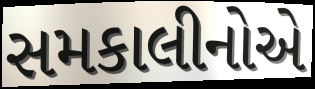
સમકાલીનોએ